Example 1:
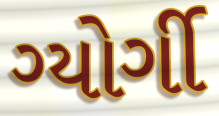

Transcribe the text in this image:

ગ્યોર્ગી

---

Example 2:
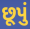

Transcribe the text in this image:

છૂપું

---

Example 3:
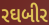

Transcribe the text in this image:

રઘબીર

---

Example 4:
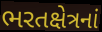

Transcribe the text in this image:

ભરતક્ષેત્રનાં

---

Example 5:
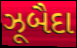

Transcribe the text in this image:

ઝૂબૈદા